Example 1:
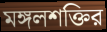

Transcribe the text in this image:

মঙ্গলশক্তির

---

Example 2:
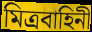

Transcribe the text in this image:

মিত্রবাহিনী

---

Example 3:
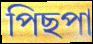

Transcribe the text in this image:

পিছপা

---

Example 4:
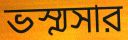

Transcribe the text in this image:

ভস্মসার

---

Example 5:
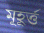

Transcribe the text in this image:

মূহূর্ত্ত